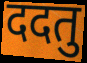
ददतु